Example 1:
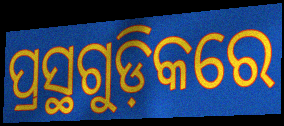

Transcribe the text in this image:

ପ୍ରସ୍ଥଗୁଡ଼ିକରେ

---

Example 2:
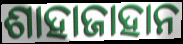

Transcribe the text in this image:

ଶାହାଜାହାନ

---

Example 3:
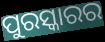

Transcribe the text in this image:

ପୁରସ୍କାରର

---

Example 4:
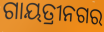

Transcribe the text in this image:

ଗାୟତ୍ରୀନଗର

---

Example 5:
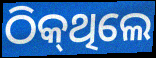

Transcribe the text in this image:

ଠିକ୍‌ଥିଲେ